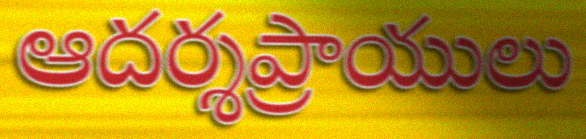
ఆదర్శప్రాయులు